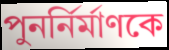
পুনর্নির্মাণকে